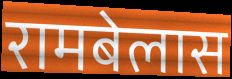
रामबेलास